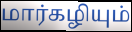
மார்கழியும்